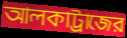
আলকাট্রাজের